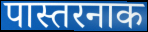
पास्तरनाक